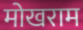
मोखराम